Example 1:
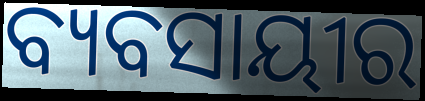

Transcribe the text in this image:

ବ୍ୟବସାୟୀର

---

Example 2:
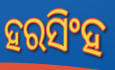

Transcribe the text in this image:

ହରସିଂହ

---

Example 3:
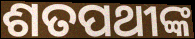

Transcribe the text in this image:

ଶତପଥୀଙ୍କ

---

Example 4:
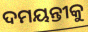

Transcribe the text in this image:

ଦମୟନ୍ତୀକୁ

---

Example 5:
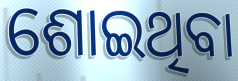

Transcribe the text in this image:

ଶୋଇଥିବା